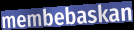
membebaskan